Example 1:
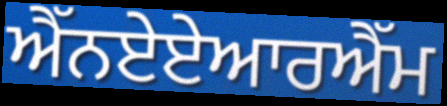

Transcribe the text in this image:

ਐੱਨਏਏਆਰਐੱਮ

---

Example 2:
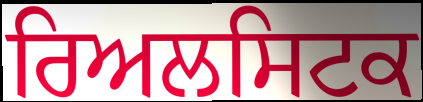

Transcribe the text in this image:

ਰਿਅਲਸਿਟਕ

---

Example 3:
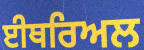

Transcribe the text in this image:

ਈਥਰਿਅਲ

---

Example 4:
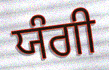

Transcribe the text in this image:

ਯੰਗੀ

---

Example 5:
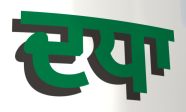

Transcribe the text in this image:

ਦਧਾ